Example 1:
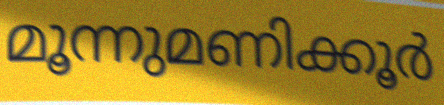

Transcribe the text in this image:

മൂന്നുമണിക്കൂർ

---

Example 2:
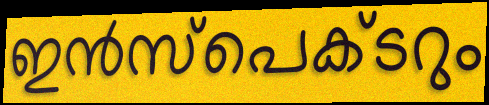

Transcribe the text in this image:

ഇൻസ്പെക്ടറും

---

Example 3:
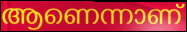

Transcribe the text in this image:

ആണെന്നാണ്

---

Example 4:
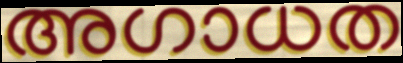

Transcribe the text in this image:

അഗാധത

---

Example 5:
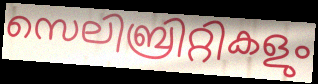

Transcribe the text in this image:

സെലിബ്രിറ്റികളും